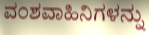
ವಂಶವಾಹಿನಿಗಳನ್ನು